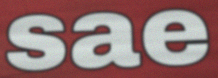
sae